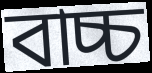
বাচ্চ